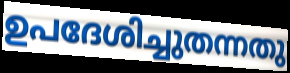
ഉപദേശിച്ചുതന്നതു